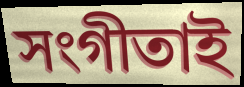
সংগীতাই